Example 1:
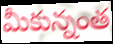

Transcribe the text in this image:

మీకున్నంత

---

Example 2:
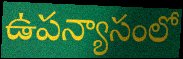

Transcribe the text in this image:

ఉపన్యాసంలో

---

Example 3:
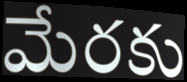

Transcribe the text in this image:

మేరకు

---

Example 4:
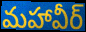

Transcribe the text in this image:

మహావీర్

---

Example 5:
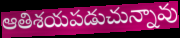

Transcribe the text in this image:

ఆతిశయపడుచున్నావు